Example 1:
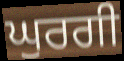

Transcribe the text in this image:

ਘੁਰਗੀ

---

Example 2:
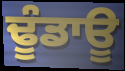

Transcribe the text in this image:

ਢੂੰਡਾਊ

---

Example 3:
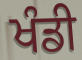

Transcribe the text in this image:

ਖੰਡੀ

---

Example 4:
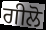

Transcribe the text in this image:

ਗੀਲੋ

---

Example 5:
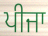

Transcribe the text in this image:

ਪੀਜਾ